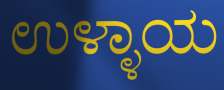
ಉಳ್ಳಾಯ